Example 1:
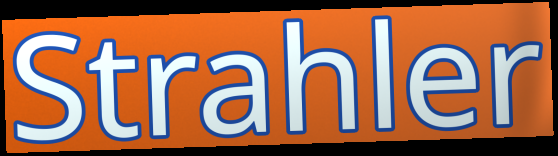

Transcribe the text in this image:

Strahler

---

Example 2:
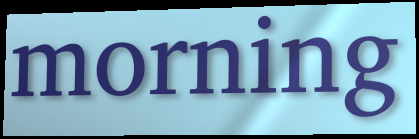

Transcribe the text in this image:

morning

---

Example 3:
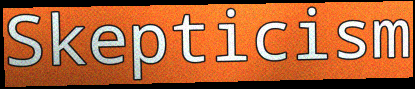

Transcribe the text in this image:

Skepticism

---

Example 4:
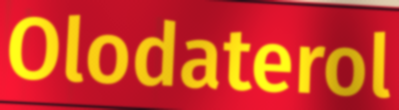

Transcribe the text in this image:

Olodaterol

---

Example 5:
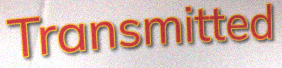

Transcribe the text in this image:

Transmitted